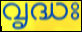
വൃദ്ധഃ